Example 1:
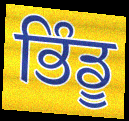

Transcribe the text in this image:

ਭਿੰਡੂ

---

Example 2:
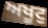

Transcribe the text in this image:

ਅਖੂਟੁ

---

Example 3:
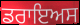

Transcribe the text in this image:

ਡਰਾਇਅਸ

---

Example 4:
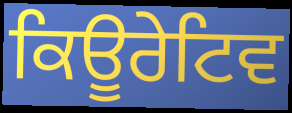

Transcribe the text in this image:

ਕਿਊਰੇਟਿਵ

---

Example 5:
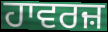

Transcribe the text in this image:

ਹਾਵਰਜ਼